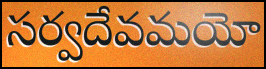
సర్వదేవమయో